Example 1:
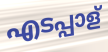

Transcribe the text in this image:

എടപ്പാള്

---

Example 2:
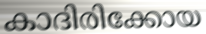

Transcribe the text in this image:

കാദിരിക്കോയ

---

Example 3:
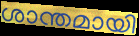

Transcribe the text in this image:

ശാന്തമായി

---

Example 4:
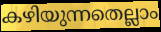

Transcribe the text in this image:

കഴിയുന്നതെല്ലാം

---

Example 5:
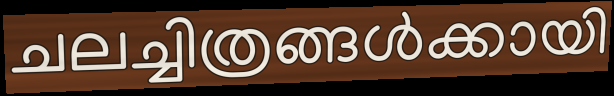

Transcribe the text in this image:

ചലച്ചിത്രങ്ങൾക്കായി